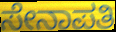
ಸೇನಾಪತಿ